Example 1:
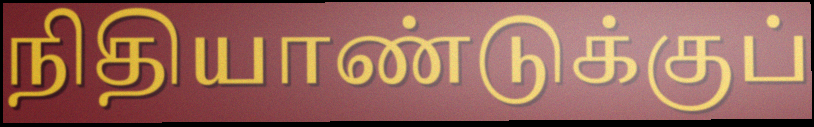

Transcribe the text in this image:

நிதியாண்டுக்குப்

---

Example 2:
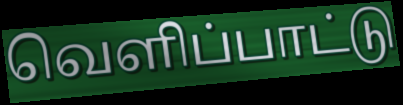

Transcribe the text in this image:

வெளிப்பாட்டு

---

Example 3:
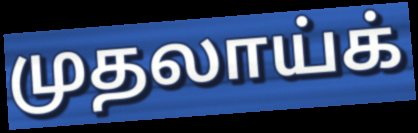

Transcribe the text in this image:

முதலாய்க்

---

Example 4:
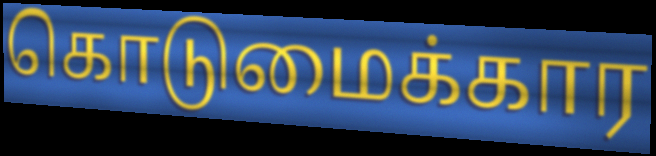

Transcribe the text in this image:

கொடுமைக்கார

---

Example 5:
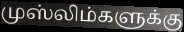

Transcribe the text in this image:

முஸ்லிம்களுக்கு